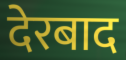
देरबाद